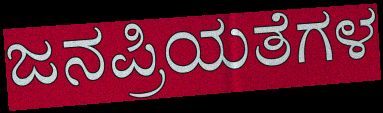
ಜನಪ್ರಿಯತೆಗಳ